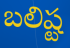
బలిష్ట